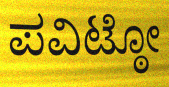
ಪವಿಟ್ಠೋ